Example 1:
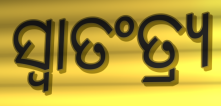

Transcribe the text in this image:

ସ୍ଵାତଂତ୍ର୍ୟ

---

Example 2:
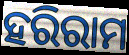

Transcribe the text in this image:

ହରିରାମ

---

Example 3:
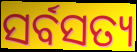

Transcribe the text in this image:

ସର୍ବସତ୍ୟ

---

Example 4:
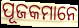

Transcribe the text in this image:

ପୂଜକମାନେ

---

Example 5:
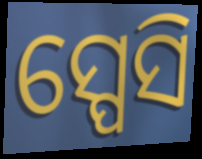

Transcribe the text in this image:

ସ୍ପେସି